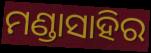
ମଣ୍ଡାସାହିର